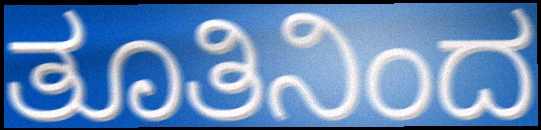
ತೂತಿನಿಂದ